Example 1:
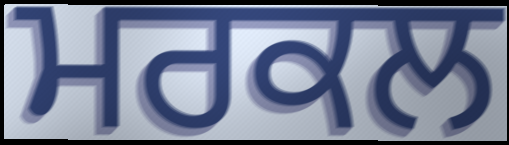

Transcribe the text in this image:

ਮਰਕਲ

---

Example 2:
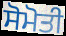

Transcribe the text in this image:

ਸੋਮੋਤੀ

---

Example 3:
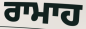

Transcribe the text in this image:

ਰਾਮਾਹ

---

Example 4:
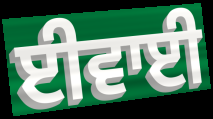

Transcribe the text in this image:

ਈਵਾਈ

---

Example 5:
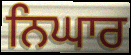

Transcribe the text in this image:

ਨਿਘਾਰ